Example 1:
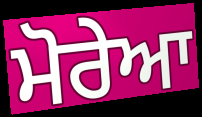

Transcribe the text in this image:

ਮੋਰੇਆ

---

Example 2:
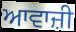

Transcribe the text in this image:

ਆਵਾਜ਼ੀ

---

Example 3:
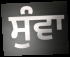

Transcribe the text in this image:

ਸੁੰਵਾ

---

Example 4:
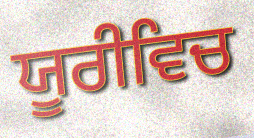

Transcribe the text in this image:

ਯੂਰੀਵਿਚ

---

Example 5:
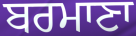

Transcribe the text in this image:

ਬਰਮਾਣਾ